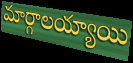
మార్గాలయ్యాయి